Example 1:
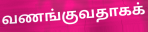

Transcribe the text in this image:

வணங்குவதாகக்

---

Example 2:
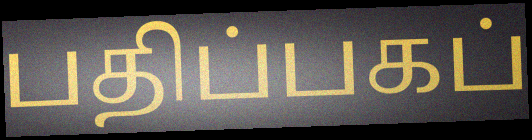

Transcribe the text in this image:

பதிப்பகப்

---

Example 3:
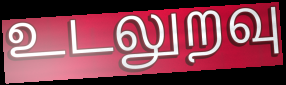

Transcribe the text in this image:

உடலுறவு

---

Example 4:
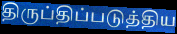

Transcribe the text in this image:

திருப்திப்படுத்திய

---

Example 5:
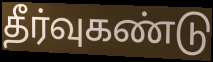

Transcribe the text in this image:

தீர்வுகண்டு